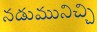
నడుమునిచ్చి